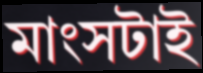
মাংসটাই